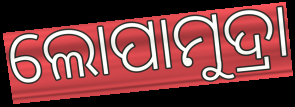
ଲୋପାମୁଦ୍ରା